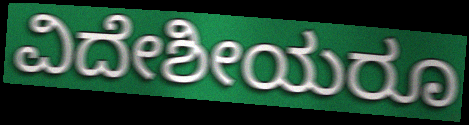
ವಿದೇಶೀಯರೂ